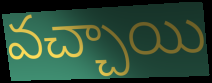
వచ్చాయి